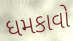
ધમકાવો